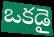
ఒకడై